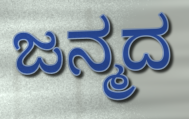
ಜನ್ಮದ